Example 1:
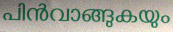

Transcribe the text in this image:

പിൻവാങ്ങുകയും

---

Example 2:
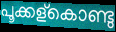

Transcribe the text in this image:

പൂക്കള്കൊണ്ടു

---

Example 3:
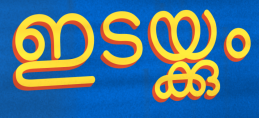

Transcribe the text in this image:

ഇടയ്ക്കും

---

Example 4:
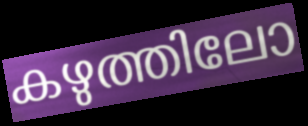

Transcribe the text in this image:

കഴുത്തിലോ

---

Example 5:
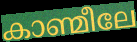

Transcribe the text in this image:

കാണ്മീലേ